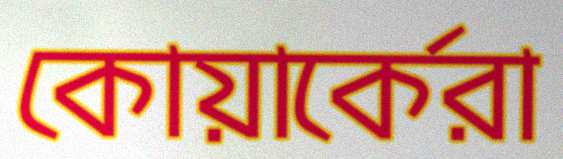
কোয়ার্কেরা